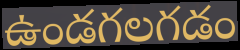
ఉండగలగడం